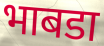
भाबडा